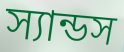
স্যান্ডস